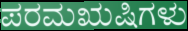
ಪರಮಋಷಿಗಳು